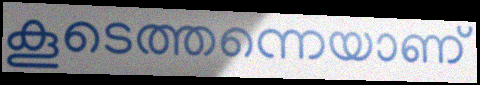
കൂടെത്തന്നെയാണ്